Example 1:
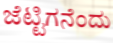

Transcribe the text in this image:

ಜೆಟ್ಟಿಗನೆಂದು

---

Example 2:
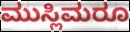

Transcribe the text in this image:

ಮುಸ್ಲಿಮರೂ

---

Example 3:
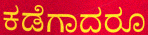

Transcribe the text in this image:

ಕಡೆಗಾದರೂ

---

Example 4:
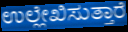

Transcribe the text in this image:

ಉಲ್ಲೇಖಿಸುತ್ತಾರೆ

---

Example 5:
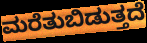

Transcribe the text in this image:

ಮರೆತುಬಿಡುತ್ತದೆ